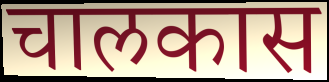
चालकास